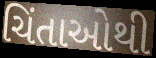
ચિંતાઓથી